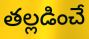
తల్లడించే